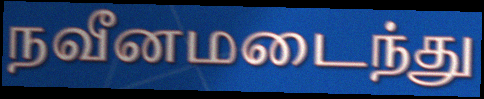
நவீனமடைந்து